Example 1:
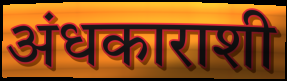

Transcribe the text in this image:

अंधकाराशी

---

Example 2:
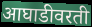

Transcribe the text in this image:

आघाडीवरती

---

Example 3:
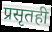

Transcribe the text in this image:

प्रसृतही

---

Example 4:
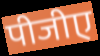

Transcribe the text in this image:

पीजीए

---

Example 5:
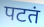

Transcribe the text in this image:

पटतं